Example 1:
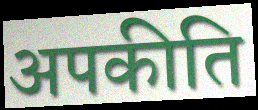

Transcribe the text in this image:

अपकीति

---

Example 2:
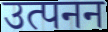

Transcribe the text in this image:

उत्पनन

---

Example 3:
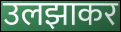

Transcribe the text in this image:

उलझाकर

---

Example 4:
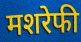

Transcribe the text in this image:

मशरेफी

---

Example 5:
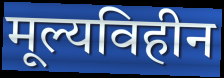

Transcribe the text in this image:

मूल्यविहीन